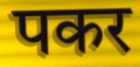
पकर